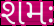
શમઃ